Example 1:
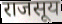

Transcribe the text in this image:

राजसूय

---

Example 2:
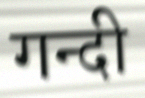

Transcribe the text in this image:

गन्दी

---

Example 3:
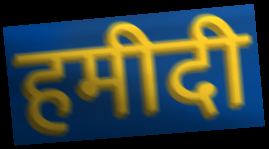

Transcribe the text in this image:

हमीदी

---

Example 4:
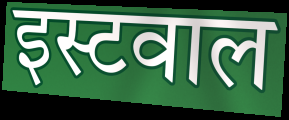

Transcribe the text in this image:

इस्टवाल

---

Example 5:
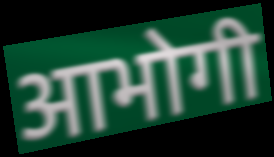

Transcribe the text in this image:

आभोगी